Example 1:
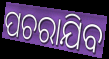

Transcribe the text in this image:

ପଚରାଯିବ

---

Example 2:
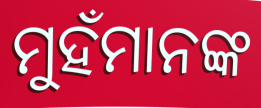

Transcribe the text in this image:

ମୁହଁମାନଙ୍କ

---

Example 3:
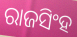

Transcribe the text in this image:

ରାଜସିଂହ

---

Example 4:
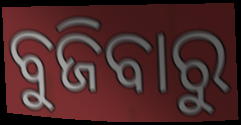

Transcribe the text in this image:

ବୁଜିବାରୁ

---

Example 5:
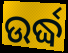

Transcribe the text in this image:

ଉର୍ଦ୍ଧ